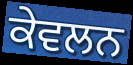
ਕੇਵਲਨ